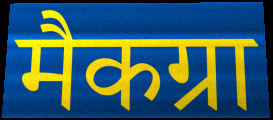
मैकग्रा